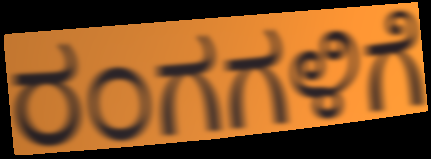
ರಂಗಗಳಿಗೆ